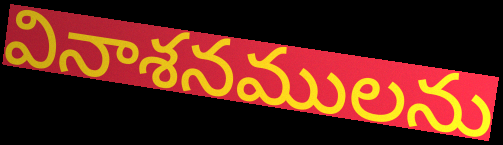
వినాశనములను